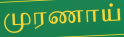
முரணாய்